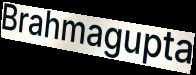
Brahmagupta